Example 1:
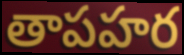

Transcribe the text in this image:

తాపహర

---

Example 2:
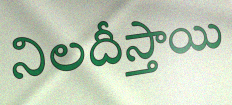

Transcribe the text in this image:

నిలదీస్తాయి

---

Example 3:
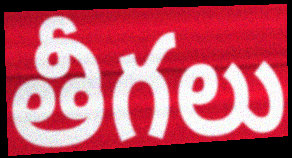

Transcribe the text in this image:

తీగలు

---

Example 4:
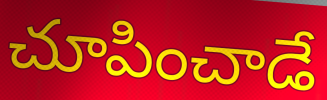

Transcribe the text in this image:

చూపించాడే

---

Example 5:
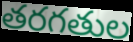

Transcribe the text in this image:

తరగతుల